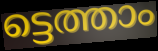
ട്ടെത്താം